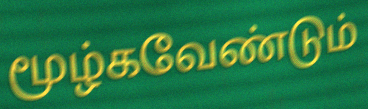
மூழ்கவேண்டும்